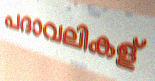
പദാവലികള്